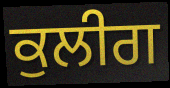
ਕੁਲੀਗ